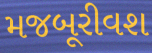
મજબૂરીવશ